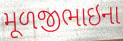
મૂળજીભાઇના